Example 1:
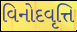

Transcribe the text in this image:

વિનોદવૃત્તિ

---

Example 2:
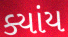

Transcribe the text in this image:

ક્યાંય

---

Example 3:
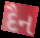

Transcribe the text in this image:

દૈન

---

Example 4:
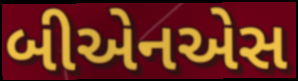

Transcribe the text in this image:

બીએનએસ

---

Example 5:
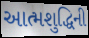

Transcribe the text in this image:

આત્મશુદ્ધિની